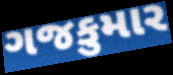
ગજકુમાર